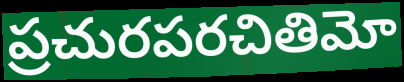
ప్రచురపరచితిమో